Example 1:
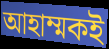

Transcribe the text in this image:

আহাম্মকই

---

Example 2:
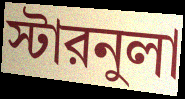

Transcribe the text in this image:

স্টারনুলা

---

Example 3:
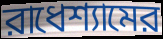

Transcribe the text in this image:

রাধেশ্যামের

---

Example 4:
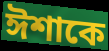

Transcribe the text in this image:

ঈশাকে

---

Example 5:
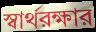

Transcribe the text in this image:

স্বার্থরক্ষার